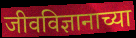
जीवविज्ञानाच्या